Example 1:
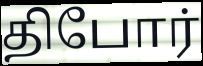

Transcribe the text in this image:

திபோர்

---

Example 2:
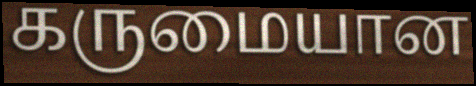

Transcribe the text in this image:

கருமையான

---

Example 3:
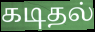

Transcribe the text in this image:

கடிதல்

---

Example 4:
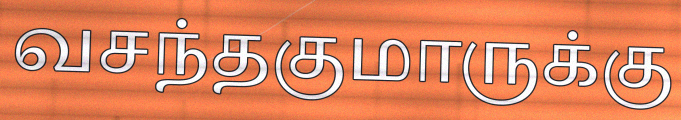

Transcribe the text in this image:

வசந்தகுமாருக்கு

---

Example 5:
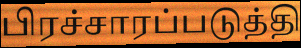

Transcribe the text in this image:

பிரச்சாரப்படுத்தி